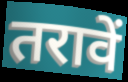
तरावें